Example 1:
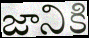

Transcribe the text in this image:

జానికి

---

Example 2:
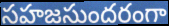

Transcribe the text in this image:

సహజసుందరంగా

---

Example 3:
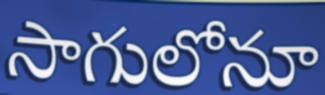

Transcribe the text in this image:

సాగులోనూ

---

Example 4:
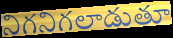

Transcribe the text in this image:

నిగనిగలాడుతూ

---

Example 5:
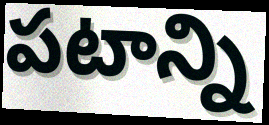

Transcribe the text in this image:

పటాన్ని